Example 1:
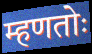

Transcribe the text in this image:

म्हणतोः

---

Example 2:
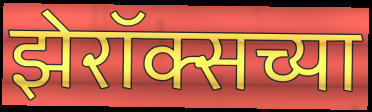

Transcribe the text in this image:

झेरॉक्सच्या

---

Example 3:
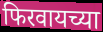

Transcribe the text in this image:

फिरवायच्या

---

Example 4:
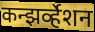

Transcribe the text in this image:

कन्झर्व्हेशन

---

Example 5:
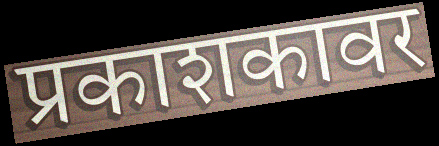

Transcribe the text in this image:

प्रकाशकावर